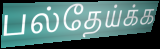
பல்தேய்க்க